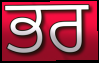
ਭਰ